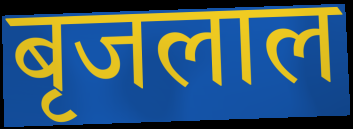
बृजलाल